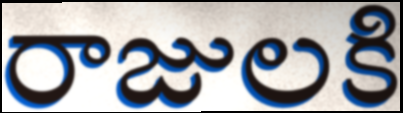
రాజులకి